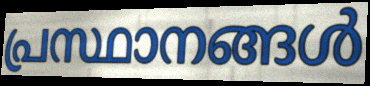
പ്രസ്ഥാനങ്ങൾ